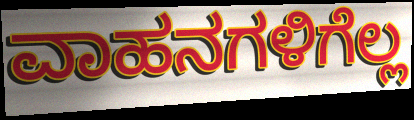
ವಾಹನಗಳಿಗೆಲ್ಲ